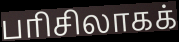
பரிசிலாகக்